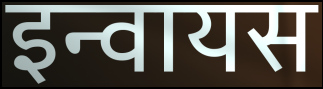
इन्वायस